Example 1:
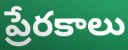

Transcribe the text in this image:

ప్రేరకాలు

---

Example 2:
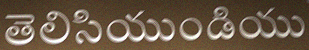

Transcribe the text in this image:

తెలిసియుండియు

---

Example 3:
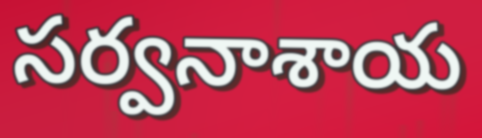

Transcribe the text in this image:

సర్వనాశాయ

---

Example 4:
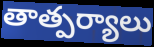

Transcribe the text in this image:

తాత్పర్యాలు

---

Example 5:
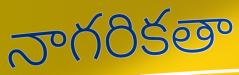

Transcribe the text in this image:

నాగరికతా